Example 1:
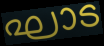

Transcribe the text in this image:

ഘാട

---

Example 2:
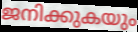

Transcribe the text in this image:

ജനിക്കുകയും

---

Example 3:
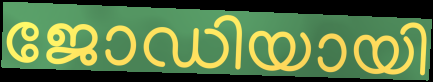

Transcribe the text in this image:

ജോഡിയായി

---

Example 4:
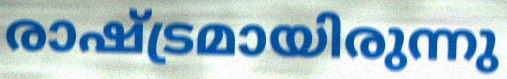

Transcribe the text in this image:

രാഷ്ട്രമായിരുന്നു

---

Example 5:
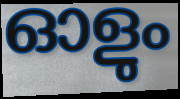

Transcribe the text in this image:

ഓളും